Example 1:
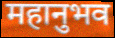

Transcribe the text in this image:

महानुभव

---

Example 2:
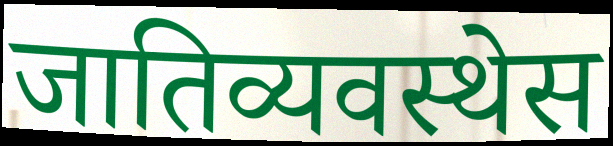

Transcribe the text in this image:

जातिव्यवस्थेस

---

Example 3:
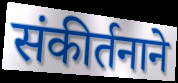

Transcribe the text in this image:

संकीर्तनाने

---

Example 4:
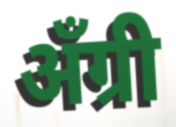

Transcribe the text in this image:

अँग्री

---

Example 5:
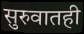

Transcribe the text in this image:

सुरुवातही